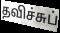
தவிச்சுப்